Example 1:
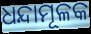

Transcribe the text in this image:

ଧନ୍ଦାମୂଳକ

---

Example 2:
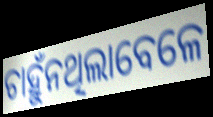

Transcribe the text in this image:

ଚାହୁଁନଥିଲାବେଳେ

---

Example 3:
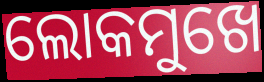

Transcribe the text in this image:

ଲୋକମୁଖେ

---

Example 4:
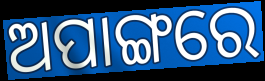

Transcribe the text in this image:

ଅପାଙ୍ଗରେ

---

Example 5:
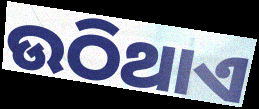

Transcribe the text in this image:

ଉଠିଥାଏ